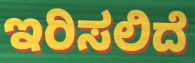
ಇರಿಸಲಿದೆ